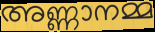
അണ്ണാനമ്മ